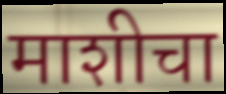
माशीचा